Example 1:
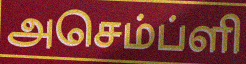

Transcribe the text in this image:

அசெம்ப்ளி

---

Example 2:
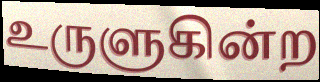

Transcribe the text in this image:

உருளுகின்ற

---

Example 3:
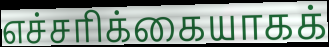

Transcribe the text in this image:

எச்சரிக்கையாகக்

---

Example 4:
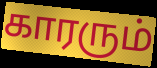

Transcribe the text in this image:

காரரும்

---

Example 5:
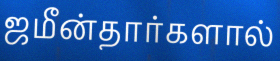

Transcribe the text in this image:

ஜமீன்தார்களால்